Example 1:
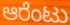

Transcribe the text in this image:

ಆರೆಂಟು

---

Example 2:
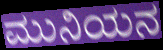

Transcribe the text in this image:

ಮುನಿಯನ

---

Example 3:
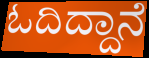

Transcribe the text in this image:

ಓದಿದ್ದಾನೆ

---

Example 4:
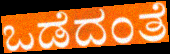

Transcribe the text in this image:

ಒಡೆದಂತೆ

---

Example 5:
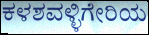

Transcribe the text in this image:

ಕಳಶವಳ್ಳಿಗೇರಿಯ